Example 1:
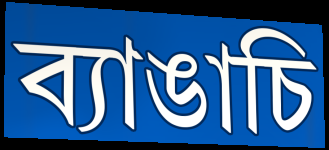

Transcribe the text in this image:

ব্যাঙাচি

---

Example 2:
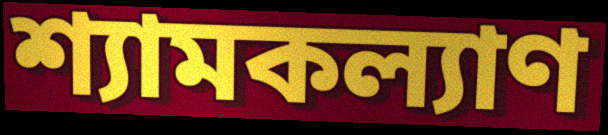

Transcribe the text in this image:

শ্যামকল্যাণ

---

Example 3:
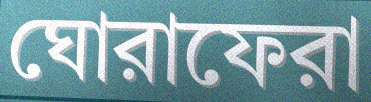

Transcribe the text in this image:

ঘোরাফেরা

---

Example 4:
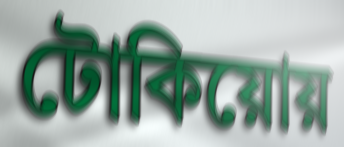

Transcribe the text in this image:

টোকিয়োয়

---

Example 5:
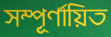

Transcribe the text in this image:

সম্পূর্ণায়িত